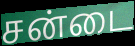
சன்டை